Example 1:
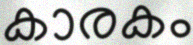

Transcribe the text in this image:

കാരകം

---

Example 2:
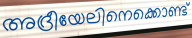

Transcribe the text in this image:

അദ്രീയേലിനെക്കൊണ്ട്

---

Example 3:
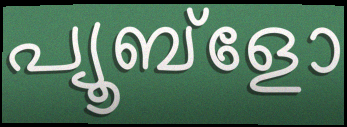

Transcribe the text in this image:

പ്യൂബ്ളോ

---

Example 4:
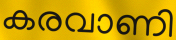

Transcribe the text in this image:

കരവാണി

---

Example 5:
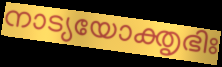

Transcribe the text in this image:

നാട്യയോക്തൃഭിഃ